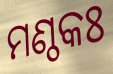
ମଣ୍ଠକଃ